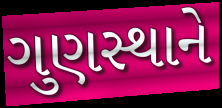
ગુણસ્થાને